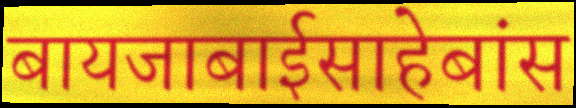
बायजाबाईसाहेबांस